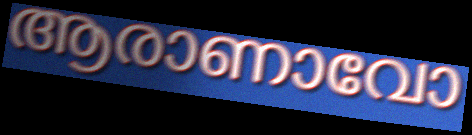
ആരാണാവോ